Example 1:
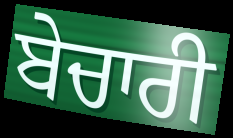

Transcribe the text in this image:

ਬੇਚਾਰੀ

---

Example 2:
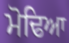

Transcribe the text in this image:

ਮੋਢਿਆ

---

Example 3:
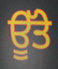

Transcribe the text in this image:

ਊੱਤੇ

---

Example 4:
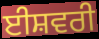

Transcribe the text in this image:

ਈਸ਼ਵਰੀ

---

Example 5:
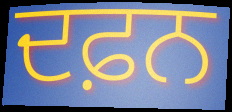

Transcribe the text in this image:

ਦਫ਼ਨ